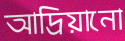
আদ্রিয়ানো